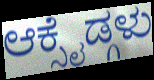
ಆಕ್ಸೈಡ್ಗಳು